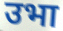
उभा